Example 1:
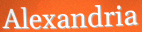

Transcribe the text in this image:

Alexandria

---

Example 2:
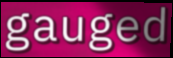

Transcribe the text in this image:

gauged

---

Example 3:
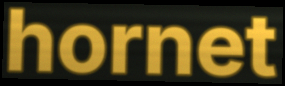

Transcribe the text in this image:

hornet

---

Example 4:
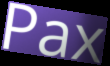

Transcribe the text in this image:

Pax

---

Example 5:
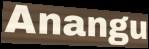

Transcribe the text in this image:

Anangu